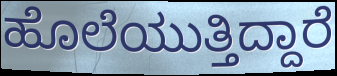
ಹೊಲೆಯುತ್ತಿದ್ದಾರೆ